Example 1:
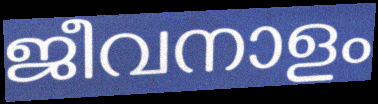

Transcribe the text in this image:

ജീവനാളം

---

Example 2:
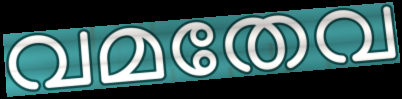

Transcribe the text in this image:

വമതേവ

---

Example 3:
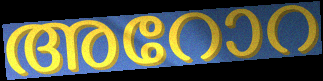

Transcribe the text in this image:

അറോറ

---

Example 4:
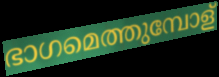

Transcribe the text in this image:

ഭാഗമെത്തുമ്പോള്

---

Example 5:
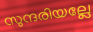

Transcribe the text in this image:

സുന്ദരിയല്ലേ